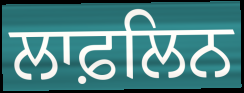
ਲਾਫ਼ਲਿਨ